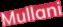
Mullani